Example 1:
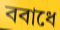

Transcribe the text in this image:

ববাধে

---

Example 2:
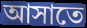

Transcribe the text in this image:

আসাতে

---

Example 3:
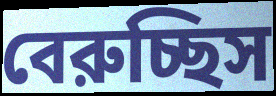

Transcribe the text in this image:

বেরুচ্ছিস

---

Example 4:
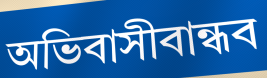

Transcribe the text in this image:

অভিবাসীবান্ধব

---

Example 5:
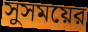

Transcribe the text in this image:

সুসময়ের